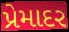
પ્રેમાદર